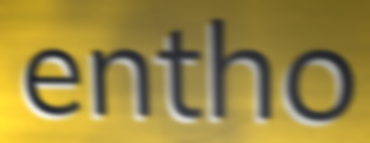
entho